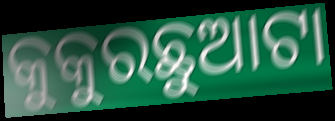
କୁକୁରଛୁଆଟା